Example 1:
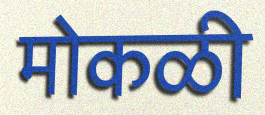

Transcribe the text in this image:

मोकळी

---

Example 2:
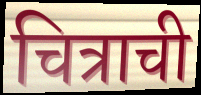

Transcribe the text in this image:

चित्राची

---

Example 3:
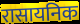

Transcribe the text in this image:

रासायनिक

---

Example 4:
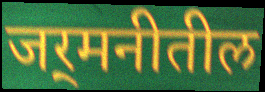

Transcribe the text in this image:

जर्मनीतील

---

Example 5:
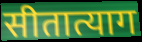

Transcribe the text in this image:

सीतात्याग